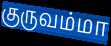
குருவம்மா